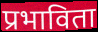
प्रभाविता